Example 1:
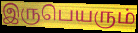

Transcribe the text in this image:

இருபெயரும்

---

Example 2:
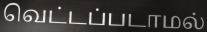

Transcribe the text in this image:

வெட்டப்படாமல்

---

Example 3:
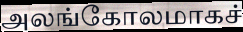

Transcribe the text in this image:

அலங்கோலமாகச்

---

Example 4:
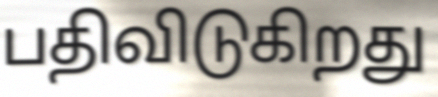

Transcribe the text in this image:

பதிவிடுகிறது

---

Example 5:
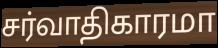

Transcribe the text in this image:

சர்வாதிகாரமா